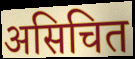
असिचित